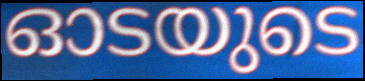
ഓടയുടെ